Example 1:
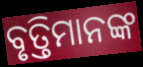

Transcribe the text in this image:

ବୃତ୍ତିମାନଙ୍କ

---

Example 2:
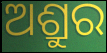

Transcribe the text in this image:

ଅଶ୍ରୁର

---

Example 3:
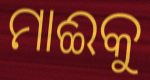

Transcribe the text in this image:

ମାଈକୁ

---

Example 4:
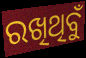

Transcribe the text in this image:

ରଖିଥିବୁଁ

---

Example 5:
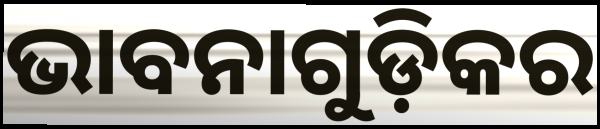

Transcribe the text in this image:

ଭାବନାଗୁଡ଼ିକର